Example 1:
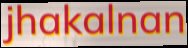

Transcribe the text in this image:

jhakalnan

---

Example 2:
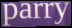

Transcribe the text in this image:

parry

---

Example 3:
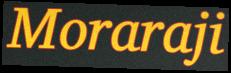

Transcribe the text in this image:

Moraraji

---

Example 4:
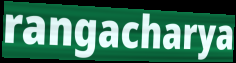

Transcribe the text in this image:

rangacharya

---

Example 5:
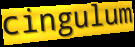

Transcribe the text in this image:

cingulum